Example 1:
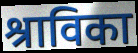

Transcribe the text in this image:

श्राविका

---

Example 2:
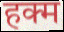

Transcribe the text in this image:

हक्म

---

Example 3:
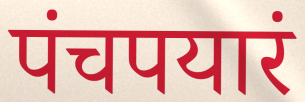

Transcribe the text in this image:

पंचपयारं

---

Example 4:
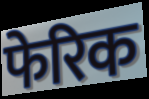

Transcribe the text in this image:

फेरिक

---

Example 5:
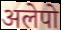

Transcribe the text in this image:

अलेपो